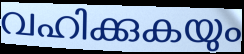
വഹിക്കുകയും